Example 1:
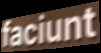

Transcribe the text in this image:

faciunt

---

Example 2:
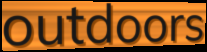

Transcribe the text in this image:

outdoors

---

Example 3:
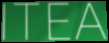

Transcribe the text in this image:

ITEA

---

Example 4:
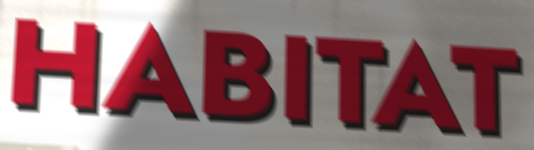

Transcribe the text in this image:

HABITAT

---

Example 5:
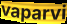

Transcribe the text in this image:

vaparvi